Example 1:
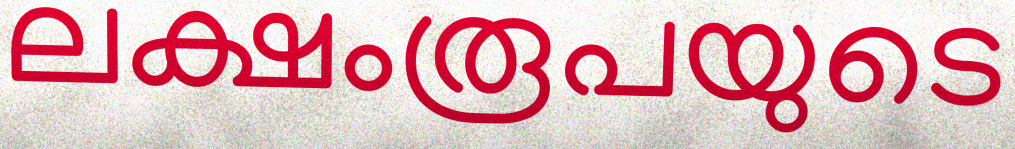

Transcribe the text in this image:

ലക്ഷംരൂപയുടെ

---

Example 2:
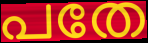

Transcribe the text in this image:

പതേ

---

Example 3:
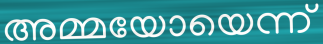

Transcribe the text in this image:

അമ്മയോയെന്ന്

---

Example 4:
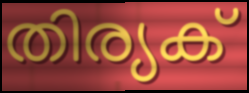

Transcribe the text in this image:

തിര്യക്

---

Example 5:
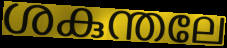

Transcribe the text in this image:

ശകുന്തലേ